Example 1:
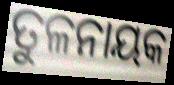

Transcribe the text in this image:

ତୁଳନାୟକ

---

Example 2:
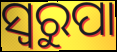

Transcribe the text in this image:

ସ୍ୱରୁପା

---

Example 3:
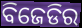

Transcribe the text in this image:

ବିଜେଡିର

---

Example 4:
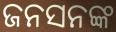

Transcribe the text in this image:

ଜନସନଙ୍କ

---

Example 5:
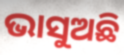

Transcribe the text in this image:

ଭାସୁଅଛି